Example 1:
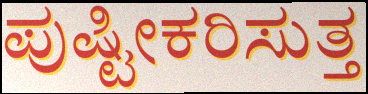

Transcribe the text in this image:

ಪುಷ್ಟೀಕರಿಸುತ್ತ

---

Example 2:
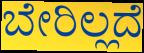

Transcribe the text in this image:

ಬೇರಿಲ್ಲದೆ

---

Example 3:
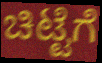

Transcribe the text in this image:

ಚಿಟ್ಟೆಗೆ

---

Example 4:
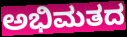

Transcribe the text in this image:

ಅಭಿಮತದ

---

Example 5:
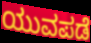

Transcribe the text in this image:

ಯುವಪಡೆ